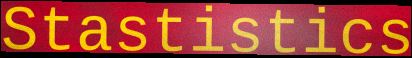
Stastistics